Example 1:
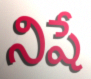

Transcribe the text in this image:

నిషే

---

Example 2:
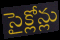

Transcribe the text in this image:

సైక్లోన్లు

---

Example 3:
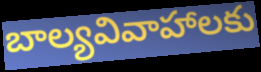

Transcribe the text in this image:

బాల్యవివాహాలకు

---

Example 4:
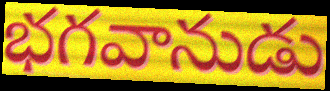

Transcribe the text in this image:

భగవానుడు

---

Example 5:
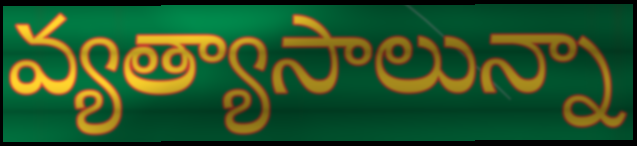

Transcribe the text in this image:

వ్యత్యాసాలున్నా